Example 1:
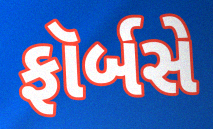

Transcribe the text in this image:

ફૉર્બસે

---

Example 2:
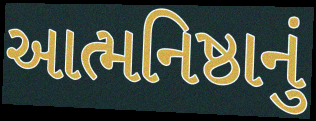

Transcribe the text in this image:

આત્મનિષ્ઠાનું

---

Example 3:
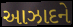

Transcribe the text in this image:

આઝાદને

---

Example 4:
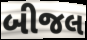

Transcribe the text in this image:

બીજલ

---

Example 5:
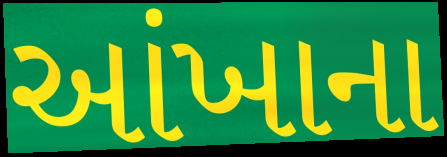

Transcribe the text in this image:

આંખાના